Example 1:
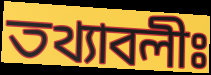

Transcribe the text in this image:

তথ্যাবলীঃ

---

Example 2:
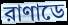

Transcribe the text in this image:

রাণাডে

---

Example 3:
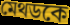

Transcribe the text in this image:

মেথডকে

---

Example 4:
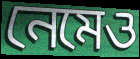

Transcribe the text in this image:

নেমেও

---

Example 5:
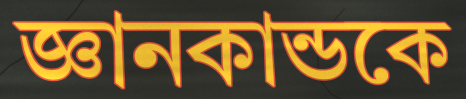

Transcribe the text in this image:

জ্ঞানকান্ডকে